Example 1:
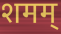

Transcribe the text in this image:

शमम्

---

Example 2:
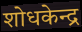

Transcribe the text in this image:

शोधकेन्द्र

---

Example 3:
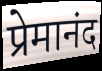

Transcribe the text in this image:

प्रेमानंद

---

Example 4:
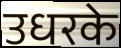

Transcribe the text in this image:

उधरके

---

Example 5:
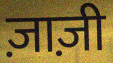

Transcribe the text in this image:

ज़ाज़ी